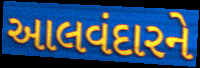
આલવંદારને